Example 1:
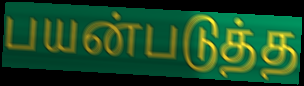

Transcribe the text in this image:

பயன்படுத்த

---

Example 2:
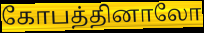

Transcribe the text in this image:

கோபத்தினாலோ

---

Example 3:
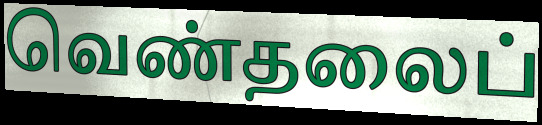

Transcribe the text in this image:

வெண்தலைப்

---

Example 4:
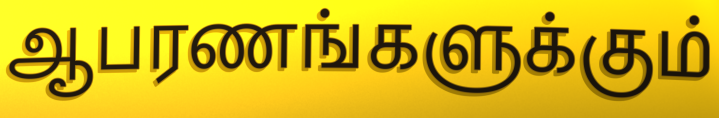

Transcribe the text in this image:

ஆபரணங்களுக்கும்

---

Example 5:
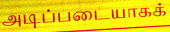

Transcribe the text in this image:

அடிப்படையாகக்